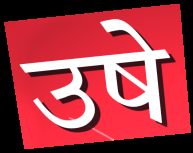
उषे